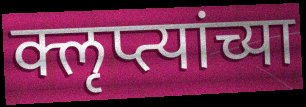
क्लृप्त्यांच्या